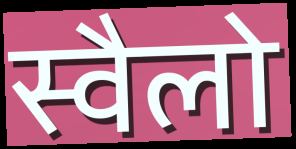
स्वैलो